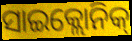
ସାଇକ୍ଲୋନିକ୍